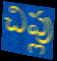
చిప్లు